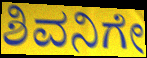
ಶಿವನಿಗೇ